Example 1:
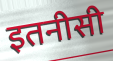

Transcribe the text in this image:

इतनीसी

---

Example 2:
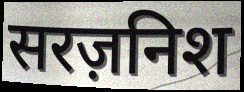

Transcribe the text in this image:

सरज़निश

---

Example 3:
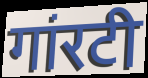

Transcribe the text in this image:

गांरटी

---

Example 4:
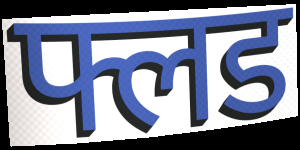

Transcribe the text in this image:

फ्लड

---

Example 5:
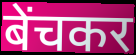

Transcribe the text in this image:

बेंचकर